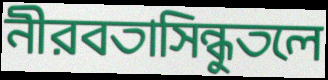
নীরবতাসিন্ধুতলে